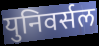
युनिवर्सल